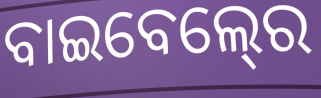
ବାଇବେଲ୍‍ରେ